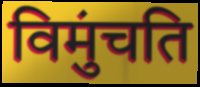
विमुंचति